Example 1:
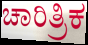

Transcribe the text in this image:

ಚಾರಿತ್ರಿಕ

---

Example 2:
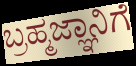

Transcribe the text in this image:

ಬ್ರಹ್ಮಜ್ಞಾನಿಗೆ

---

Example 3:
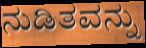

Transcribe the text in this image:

ನುಡಿತವನ್ನು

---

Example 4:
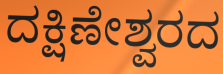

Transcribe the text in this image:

ದಕ್ಷಿಣೇಶ್ವರದ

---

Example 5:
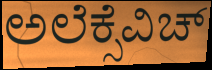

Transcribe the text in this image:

ಅಲೆಕ್ಸೆವಿಚ್